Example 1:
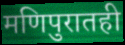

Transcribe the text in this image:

मणिपुरातही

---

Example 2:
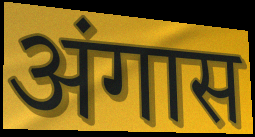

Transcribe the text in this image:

अंगास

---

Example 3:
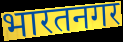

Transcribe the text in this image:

भारतनगर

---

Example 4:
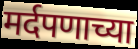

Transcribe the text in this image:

मर्दपणाच्या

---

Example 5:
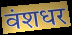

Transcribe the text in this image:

वंशधर